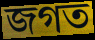
জগত